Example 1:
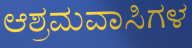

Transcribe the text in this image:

ಆಶ್ರಮವಾಸಿಗಳ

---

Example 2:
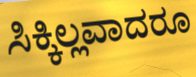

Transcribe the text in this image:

ಸಿಕ್ಕಿಲ್ಲವಾದರೂ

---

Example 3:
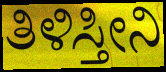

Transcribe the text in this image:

ತಿಳಿಸ್ತೀನಿ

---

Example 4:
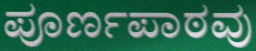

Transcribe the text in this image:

ಪೂರ್ಣಪಾಠವು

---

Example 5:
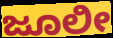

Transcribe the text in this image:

ಜೂಲೀ